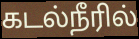
கடல்நீரில்